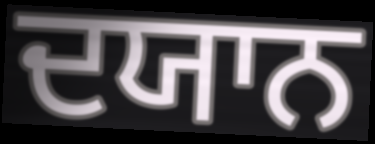
ਦਯਾਨ